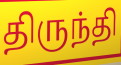
திருந்தி